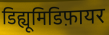
डिह्यूमिडिफ़ायर